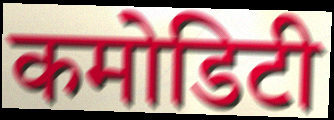
कमोडिटी